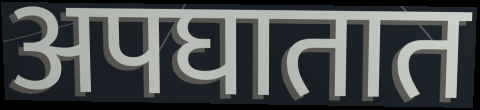
अपघातात